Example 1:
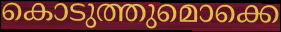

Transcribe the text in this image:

കൊടുത്തുമൊക്കെ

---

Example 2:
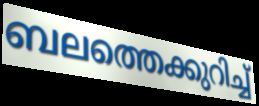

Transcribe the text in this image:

ബലത്തെക്കുറിച്ച്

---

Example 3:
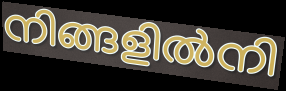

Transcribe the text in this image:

നിങ്ങളിൽനി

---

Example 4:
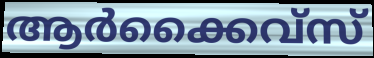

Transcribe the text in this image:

ആർക്കൈവ്സ്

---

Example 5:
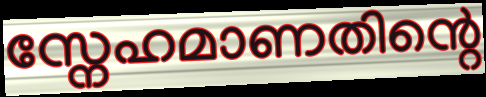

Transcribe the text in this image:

സ്നേഹമാണതിന്റെ